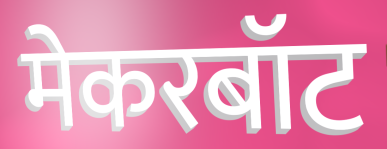
मेकरबॉट